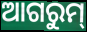
ଆଗରୁମ୍